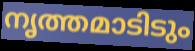
നൃത്തമാടിടും